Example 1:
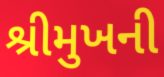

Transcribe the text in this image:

શ્રીમુખની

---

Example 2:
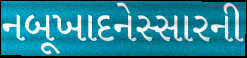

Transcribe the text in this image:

નબૂખાદનેસ્સારની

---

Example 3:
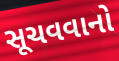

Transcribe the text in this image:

સૂચવવાનો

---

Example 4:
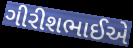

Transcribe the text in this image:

ગીરીશભાઈએ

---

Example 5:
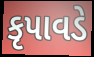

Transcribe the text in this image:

કૃપાવડે